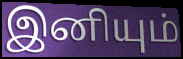
இனியும்